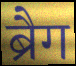
ब्रैग